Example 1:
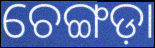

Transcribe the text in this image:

ଚେଙ୍ଗଡ଼ା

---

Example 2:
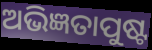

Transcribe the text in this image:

ଅଭିଜ୍ଞତାପୁଷ୍ଟ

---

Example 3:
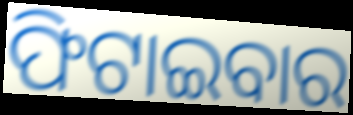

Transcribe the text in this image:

ଫିଟାଇବାର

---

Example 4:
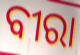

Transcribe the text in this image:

ବୀରା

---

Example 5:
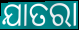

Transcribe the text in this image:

ଯାତରା